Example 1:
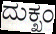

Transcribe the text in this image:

ದುಕ್ಖಂ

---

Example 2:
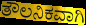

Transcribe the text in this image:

ತೌಲನಿಕವಾಗಿ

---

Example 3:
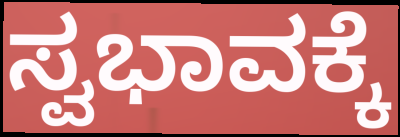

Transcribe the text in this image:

ಸ್ವಭಾವಕ್ಕೆ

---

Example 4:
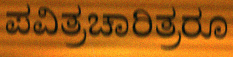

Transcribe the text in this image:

ಪವಿತ್ರಚಾರಿತ್ರರೂ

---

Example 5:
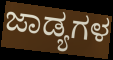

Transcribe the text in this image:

ಜಾಡ್ಯಗಳ